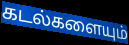
கடல்களையும்